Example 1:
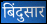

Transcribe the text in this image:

बिंदुसार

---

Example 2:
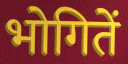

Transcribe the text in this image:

भोगितें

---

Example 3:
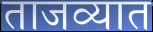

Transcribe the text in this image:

ताजव्यात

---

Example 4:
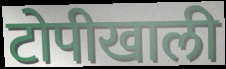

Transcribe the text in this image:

टोपीखाली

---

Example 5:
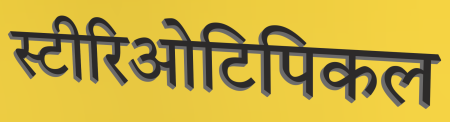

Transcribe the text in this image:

स्टीरिओटिपिकल